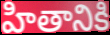
హితానికి